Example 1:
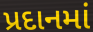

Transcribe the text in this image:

પ્રદાનમાં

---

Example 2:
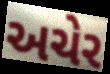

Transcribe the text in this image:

અચેર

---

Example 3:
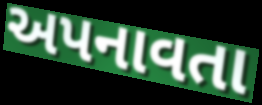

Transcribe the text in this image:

અપનાવતા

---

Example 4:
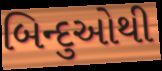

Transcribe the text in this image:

બિન્દુઓથી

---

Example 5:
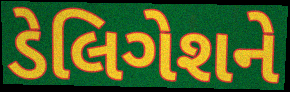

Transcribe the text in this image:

ડેલિગેશને